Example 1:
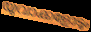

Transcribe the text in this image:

യുവാക്കളോടും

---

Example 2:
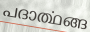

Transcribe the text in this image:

പദാൎത്ഥങ്ങ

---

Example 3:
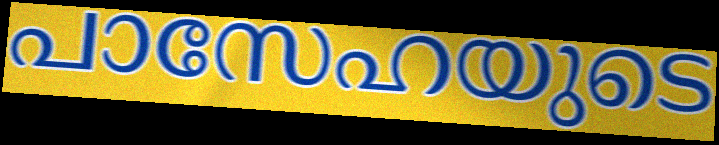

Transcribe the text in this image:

പാസേഹയുടെ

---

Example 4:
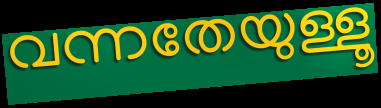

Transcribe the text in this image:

വന്നതേയുള്ളൂ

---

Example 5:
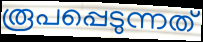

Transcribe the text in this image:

രൂപപ്പെടുന്നത്